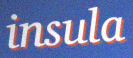
insula